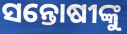
ସନ୍ତୋଷୀଙ୍କୁ